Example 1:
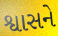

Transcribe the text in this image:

શ્વાસને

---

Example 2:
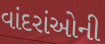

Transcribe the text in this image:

વાંદરાંઓની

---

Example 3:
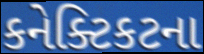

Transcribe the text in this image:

કનેક્ટિકટના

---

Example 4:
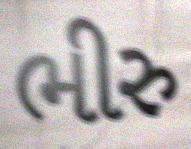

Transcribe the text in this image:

ભીરુ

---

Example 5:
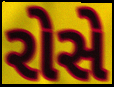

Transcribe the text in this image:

રોસે